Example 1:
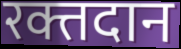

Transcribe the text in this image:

रक्तदान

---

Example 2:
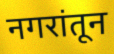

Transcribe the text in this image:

नगरांतून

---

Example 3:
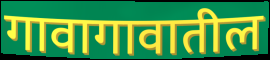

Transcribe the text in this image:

गावागावातील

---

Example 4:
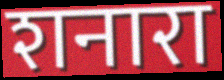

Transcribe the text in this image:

शनारा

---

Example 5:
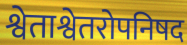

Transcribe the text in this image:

श्वेताश्वेतरोपनिषद